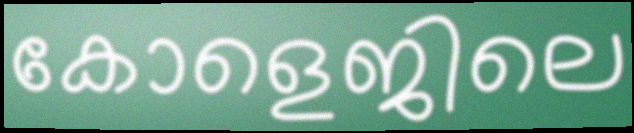
കോളെജിലെ